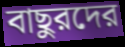
বাছুরদের